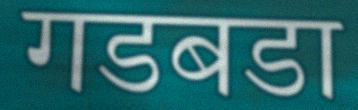
गडबडा